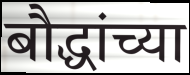
बौद्धांच्या